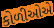
કોળીઓએ